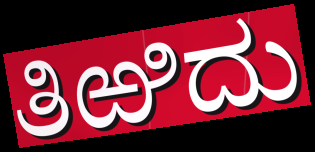
ತಿಱಿದು